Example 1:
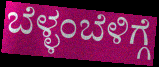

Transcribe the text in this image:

ಬೆಳ್ಳಂಬೆಳಿಗ್ಗೆ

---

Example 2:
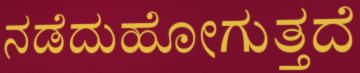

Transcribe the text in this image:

ನಡೆದುಹೋಗುತ್ತದೆ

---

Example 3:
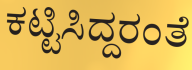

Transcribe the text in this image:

ಕಟ್ಟಿಸಿದ್ದರಂತೆ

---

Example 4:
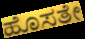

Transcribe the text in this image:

ಹೊಸತೇ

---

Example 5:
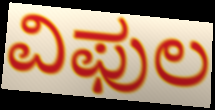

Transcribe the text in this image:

ವಿಫುಲ